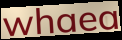
whaea